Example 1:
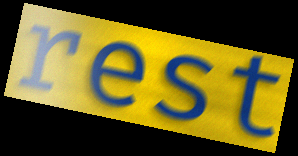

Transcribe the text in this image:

rest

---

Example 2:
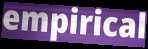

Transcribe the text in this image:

empirical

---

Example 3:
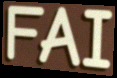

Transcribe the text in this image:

FAI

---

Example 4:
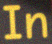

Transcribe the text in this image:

In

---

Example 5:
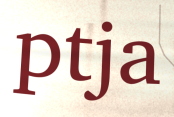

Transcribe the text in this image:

ptja